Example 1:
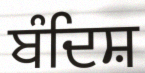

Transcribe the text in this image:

ਬੰਦਿਸ਼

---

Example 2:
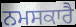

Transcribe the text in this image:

ਨਮਸਕਾਰੈ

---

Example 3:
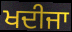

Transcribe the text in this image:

ਖਦੀਜਾ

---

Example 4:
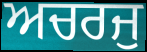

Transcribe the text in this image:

ਅਚਰਜੁ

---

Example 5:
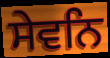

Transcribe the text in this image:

ਸੇਵਨਿ